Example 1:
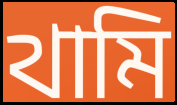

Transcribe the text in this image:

থামি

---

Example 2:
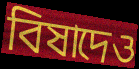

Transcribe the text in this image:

বিষাদেও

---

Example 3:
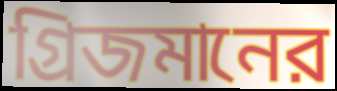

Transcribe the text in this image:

গ্রিজমানের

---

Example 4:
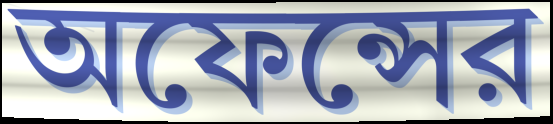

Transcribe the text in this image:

অফেন্সের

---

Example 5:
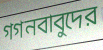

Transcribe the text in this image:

গগনবাবুদের